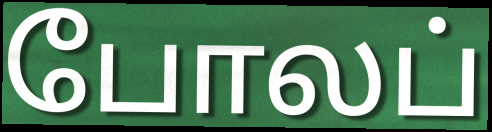
போலப்